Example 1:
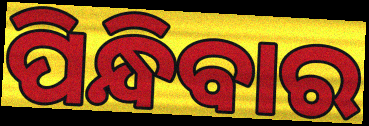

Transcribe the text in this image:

ପିନ୍ଧିବାର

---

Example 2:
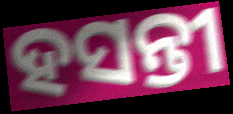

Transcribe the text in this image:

ହସନ୍ତୀ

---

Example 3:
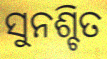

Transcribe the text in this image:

ସୁନଶ୍ଚିତ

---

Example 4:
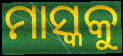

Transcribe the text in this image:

ମାସ୍କକୁ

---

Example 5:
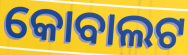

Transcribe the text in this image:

କୋବାଲଟ